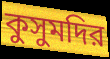
কুসুমদির